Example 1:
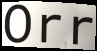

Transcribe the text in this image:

Orr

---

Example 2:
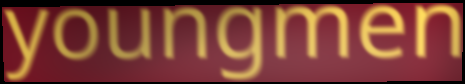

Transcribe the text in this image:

youngmen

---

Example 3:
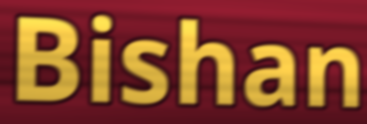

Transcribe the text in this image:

Bishan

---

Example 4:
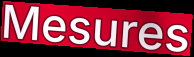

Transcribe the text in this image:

Mesures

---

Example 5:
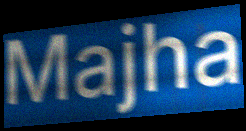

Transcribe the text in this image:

Majha